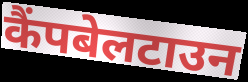
कैंपबेलटाउन